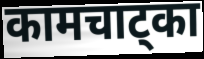
कामचाट्का